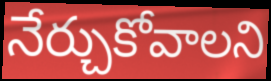
నేర్చుకోవాలని